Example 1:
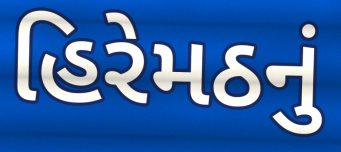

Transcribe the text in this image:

હિરેમઠનું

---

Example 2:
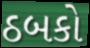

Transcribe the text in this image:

ઠબકો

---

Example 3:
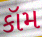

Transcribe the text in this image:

કૉમ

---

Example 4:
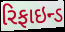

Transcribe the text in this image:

રિફાઇન્ડ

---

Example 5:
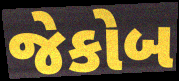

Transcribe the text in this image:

જેકોબ